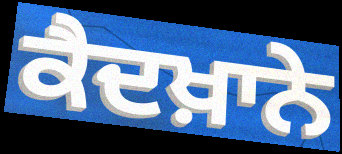
ਕੈਦਖ਼ਾਨੇ